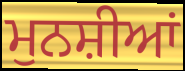
ਮੁਨਸ਼ੀਆਂ